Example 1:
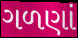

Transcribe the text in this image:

ગળણાં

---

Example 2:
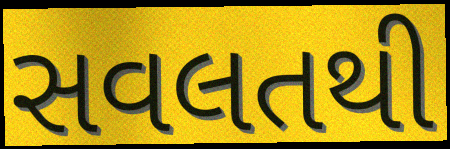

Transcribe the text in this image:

સવલતથી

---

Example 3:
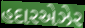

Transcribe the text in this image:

હદારએઝેર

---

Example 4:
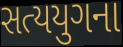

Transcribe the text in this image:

સત્યયુગના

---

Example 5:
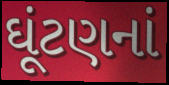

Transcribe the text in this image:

ઘૂંટણનાં